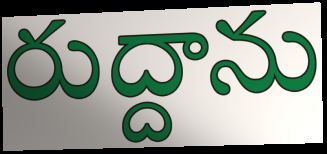
రుద్దాను